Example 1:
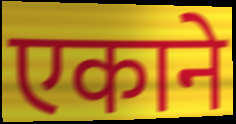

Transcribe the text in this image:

एकाने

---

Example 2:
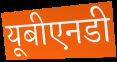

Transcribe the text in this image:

यूबीएनडी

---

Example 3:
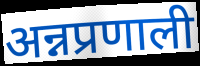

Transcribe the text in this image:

अन्नप्रणाली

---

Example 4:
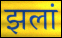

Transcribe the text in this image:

झलां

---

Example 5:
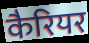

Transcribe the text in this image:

कैरियर